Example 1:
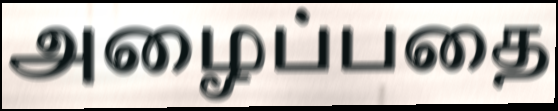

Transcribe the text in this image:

அழைப்பதை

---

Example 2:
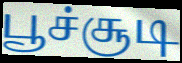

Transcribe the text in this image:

பூச்சூடி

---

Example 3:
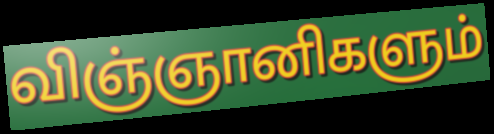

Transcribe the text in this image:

விஞ்ஞானிகளும்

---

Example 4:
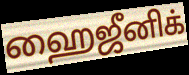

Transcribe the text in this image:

ஹைஜீனிக்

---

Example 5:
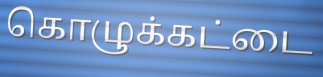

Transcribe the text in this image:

கொழுக்கட்டை